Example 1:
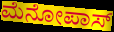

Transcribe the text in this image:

ಮೆನೋಪಾಸ್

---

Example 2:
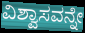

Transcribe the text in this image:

ವಿಶ್ವಾಸವನ್ನೇ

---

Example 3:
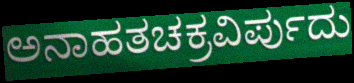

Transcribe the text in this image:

ಅನಾಹತಚಕ್ರವಿರ್ಪುದು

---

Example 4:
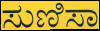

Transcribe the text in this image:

ಸುಣಿಸಾ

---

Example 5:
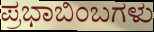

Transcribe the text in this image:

ಪ್ರಭಾಬಿಂಬಗಳು